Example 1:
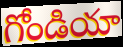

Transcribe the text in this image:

గోండియా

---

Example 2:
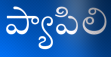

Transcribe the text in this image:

ప్యాపిలి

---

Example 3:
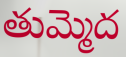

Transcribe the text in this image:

తుమ్మెద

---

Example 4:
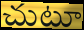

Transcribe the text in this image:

చుటూ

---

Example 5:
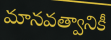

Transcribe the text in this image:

మానవత్వానికీ